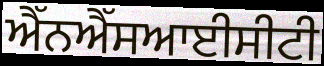
ਐੱਨਐੱਸਆਈਸੀਟੀ